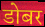
डोबर